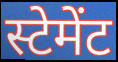
स्टेमेंट